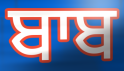
ਬਾਬ